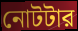
নোটটার